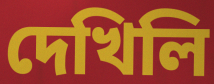
দেখিলি